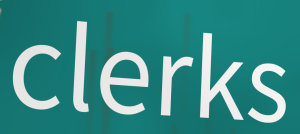
clerks